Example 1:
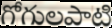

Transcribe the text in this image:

గోగులపాటి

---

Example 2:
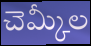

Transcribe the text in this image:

చెమ్కీల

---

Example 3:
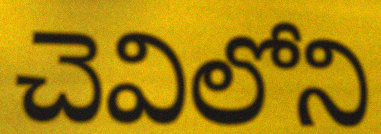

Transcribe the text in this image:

చెవిలోని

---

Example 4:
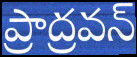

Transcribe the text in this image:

ప్రాద్రవన్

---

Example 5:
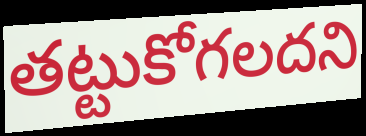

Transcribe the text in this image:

తట్టుకోగలదని